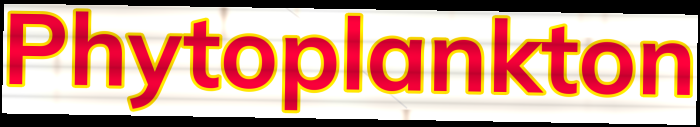
Phytoplankton